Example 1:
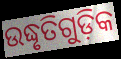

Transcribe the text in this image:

ଉଦ୍ଧୃତିଗୁଡ଼ିକ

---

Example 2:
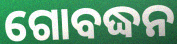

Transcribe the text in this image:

ଗୋବଦ୍ଧନ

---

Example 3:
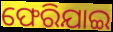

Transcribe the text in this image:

ଫେରିଯାଇ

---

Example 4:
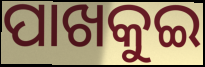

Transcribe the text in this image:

ପାଖକୁଇ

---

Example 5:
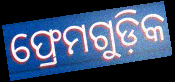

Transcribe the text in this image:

ଫ୍ରେମଗୁଡ଼ିକ